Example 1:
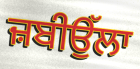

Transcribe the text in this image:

ਜ਼ਬੀਉੱਲਾ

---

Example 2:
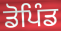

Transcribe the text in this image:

ਡੋਪਿੰਡ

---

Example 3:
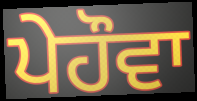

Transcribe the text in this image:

ਪੇਹੌਵਾ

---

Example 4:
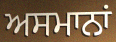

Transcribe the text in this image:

ਅਸਮਾਨਾਂ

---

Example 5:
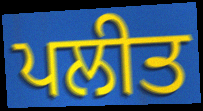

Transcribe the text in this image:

ਪਲੀਤ